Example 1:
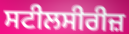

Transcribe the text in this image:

ਸਟੀਲਸੀਰੀਜ਼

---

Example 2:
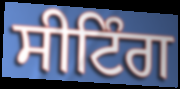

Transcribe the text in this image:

ਸੀਟਿੰਗ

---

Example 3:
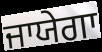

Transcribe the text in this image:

ਜਾਯੇਗਾ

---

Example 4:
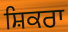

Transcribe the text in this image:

ਸ਼ਿਕਰਾ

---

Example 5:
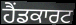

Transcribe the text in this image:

ਹੈਂਡਕਾਰਟ